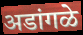
अडांगळे